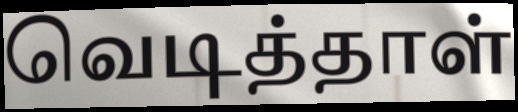
வெடித்தாள்